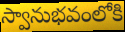
స్వానుభవంలోకి